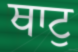
ਥਾਟੁ